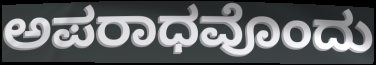
ಅಪರಾಧವೊಂದು